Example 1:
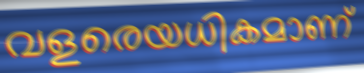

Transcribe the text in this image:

വളരെയധികമാണ്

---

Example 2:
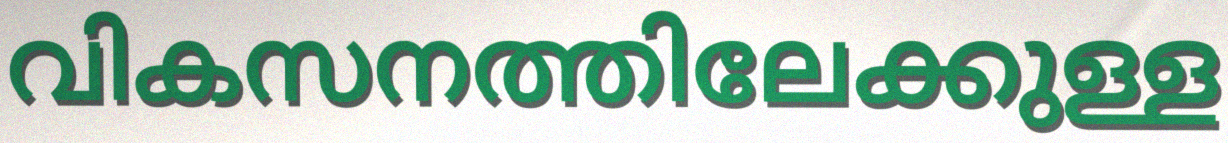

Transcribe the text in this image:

വികസനത്തിലേക്കുള്ള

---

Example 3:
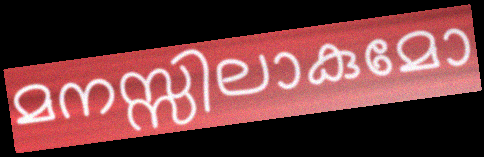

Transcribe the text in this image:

മനസ്സിലാകുമോ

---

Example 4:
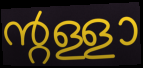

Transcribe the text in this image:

ന്റള്ളാ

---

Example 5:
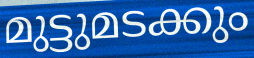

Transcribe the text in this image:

മുട്ടുമടക്കും